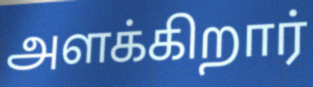
அளக்கிறார்